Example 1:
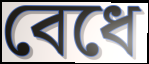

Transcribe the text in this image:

বেধে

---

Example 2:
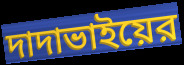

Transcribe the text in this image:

দাদাভাইয়ের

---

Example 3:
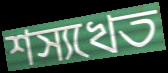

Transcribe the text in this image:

শস্যখেত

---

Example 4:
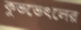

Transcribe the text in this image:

কুভভেৎলের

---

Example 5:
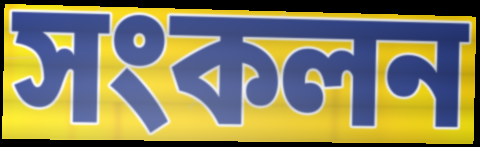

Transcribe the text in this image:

সংকলন